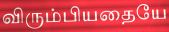
விரும்பியதையே